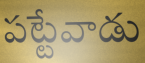
పట్టేవాడు